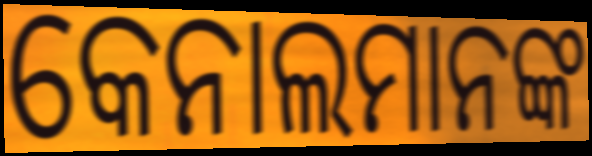
କେନାଲମାନଙ୍କ